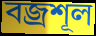
বজ্রশূল